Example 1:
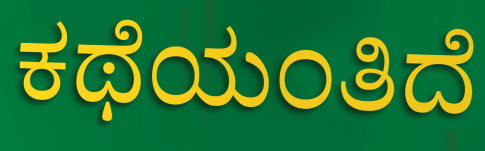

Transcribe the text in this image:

ಕಥೆಯಂತಿದೆ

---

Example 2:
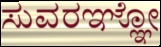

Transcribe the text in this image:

ಸುವರಞ್ಞೋ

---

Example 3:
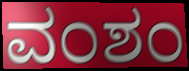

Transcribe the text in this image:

ವಂಶಂ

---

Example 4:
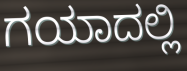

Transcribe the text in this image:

ಗಯಾದಲ್ಲಿ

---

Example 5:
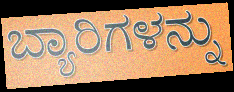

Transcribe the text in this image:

ಬ್ಯಾರಿಗಳನ್ನು